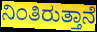
ನಿಂತಿರುತ್ತಾನೆ